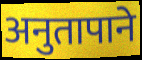
अनुतापाने